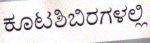
ಕೂಟಶಿಬಿರಗಳಲ್ಲಿ